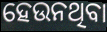
ହେଉନଥିବା